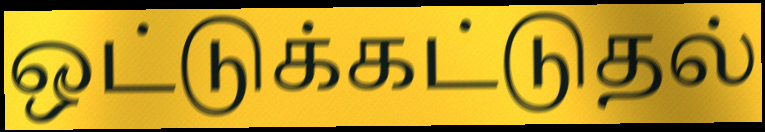
ஒட்டுக்கட்டுதல்